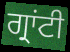
ਗ੍ਰਾਂਟੀ